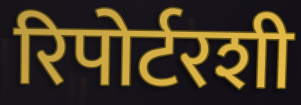
रिपोर्टरशी